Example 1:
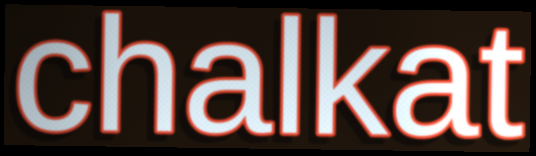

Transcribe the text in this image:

chalkat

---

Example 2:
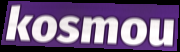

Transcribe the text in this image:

kosmou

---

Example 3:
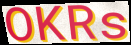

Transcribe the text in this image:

OKRs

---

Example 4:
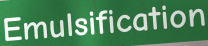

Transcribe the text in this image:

Emulsification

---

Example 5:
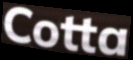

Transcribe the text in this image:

Cotta